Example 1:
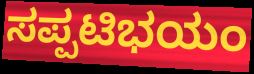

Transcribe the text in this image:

ಸಪ್ಪಟಿಭಯಂ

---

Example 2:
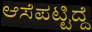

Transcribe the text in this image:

ಆಸೆಪಟ್ಟಿದ್ದೆ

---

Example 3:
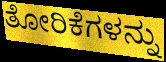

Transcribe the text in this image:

ತೋರಿಕೆಗಳನ್ನು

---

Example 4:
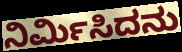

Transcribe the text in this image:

ನಿರ್ಮಿಸಿದನು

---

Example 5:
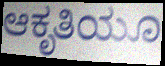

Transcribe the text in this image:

ಆಕೃತಿಯೂ